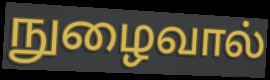
நுழைவால்